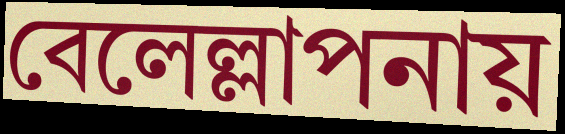
বেলেল্লাপনায়